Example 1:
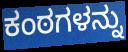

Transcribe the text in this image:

ಕಂಠಗಳನ್ನು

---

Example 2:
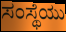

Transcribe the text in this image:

ಸಂಸ್ಥೆಯು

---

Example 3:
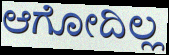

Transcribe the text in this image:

ಆಗೋದಿಲ್ಲ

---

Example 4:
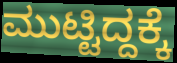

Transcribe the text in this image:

ಮುಟ್ಟಿದ್ದಕ್ಕೆ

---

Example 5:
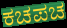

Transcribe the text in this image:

ಕಚಪಚ